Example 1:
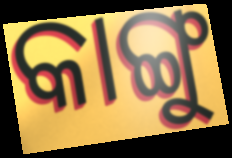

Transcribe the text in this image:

କାଙ୍ଗୁ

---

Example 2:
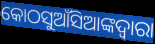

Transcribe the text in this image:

କୋଠସୁଆଁସିଆଙ୍କଦ୍ବାରା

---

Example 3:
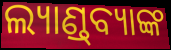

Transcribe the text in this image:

ଲ୍ୟାଣ୍ଡ୍‌ବ୍ୟାଙ୍କ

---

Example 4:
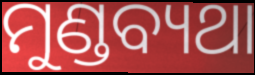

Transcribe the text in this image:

ମୁଣ୍ଡବ୍ୟଥା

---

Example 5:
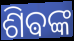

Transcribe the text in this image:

ଶିଵଙ୍କ